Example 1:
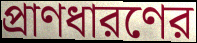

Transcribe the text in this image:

প্রাণধারণের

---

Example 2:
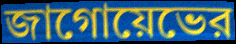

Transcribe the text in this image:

জাগোয়েভের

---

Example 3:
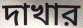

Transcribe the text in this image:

দাখার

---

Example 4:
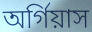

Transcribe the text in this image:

অর্গিয়াস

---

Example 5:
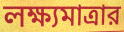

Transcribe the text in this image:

লক্ষ্যমাত্রার